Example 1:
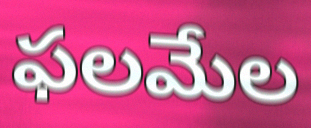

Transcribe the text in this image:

ఫలమేల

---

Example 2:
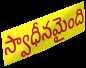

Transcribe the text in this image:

స్వాధీనమైంది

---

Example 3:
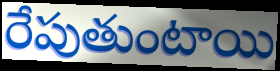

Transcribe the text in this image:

రేపుతుంటాయి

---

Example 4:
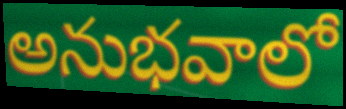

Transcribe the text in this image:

అనుభవాలో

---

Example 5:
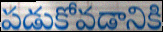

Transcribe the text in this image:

పడుకోవడానికి